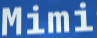
Mimi